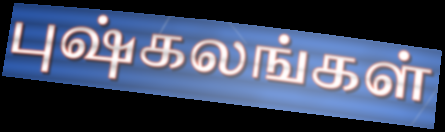
புஷ்கலங்கள்